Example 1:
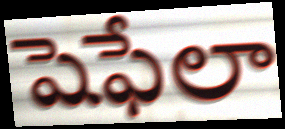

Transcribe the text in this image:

షెఫేలా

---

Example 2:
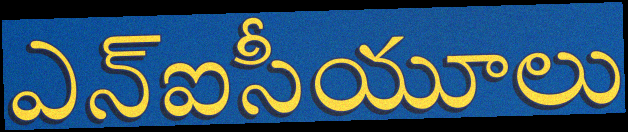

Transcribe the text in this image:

ఎన్ఐసీయూలు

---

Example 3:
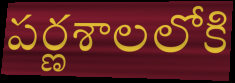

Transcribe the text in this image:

పర్ణశాలలోకి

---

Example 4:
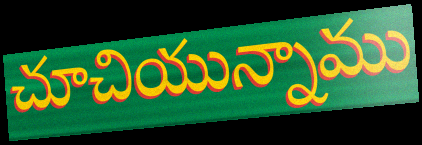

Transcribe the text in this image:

చూచియున్నాము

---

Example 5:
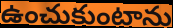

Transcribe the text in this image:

ఉంచుకుంటాను